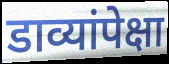
डाव्यांपेक्षा